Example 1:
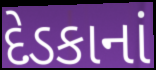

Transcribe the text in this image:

દેડકાનાં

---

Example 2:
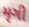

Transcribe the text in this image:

મૃગી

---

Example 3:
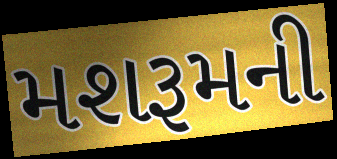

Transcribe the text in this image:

મશરૂમની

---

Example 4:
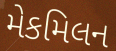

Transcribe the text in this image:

મેકમિલન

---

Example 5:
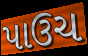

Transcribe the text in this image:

પાઉચ